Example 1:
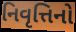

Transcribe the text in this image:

નિવૃત્તિનો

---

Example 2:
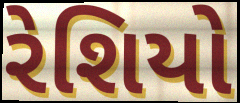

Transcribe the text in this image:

રેશિયો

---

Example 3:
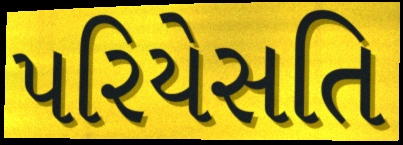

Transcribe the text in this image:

પરિયેસતિ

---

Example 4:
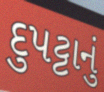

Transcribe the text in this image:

દુપટ્ટાનું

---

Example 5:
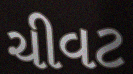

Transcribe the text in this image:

ચીવટ